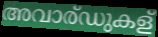
അവാര്ഡുകള്